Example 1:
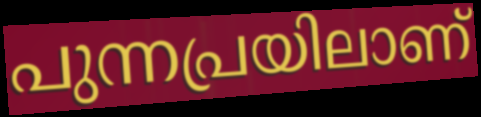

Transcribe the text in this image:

പുന്നപ്രയിലാണ്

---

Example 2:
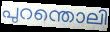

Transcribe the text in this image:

പുറന്തൊലി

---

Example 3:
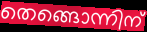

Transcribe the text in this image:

തെങ്ങൊന്നിന്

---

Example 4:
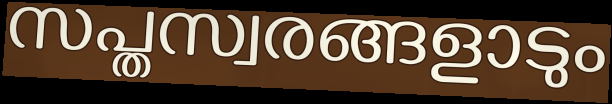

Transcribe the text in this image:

സപ്തസ്വരങ്ങളാടും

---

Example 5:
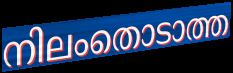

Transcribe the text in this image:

നിലംതൊടാത്ത